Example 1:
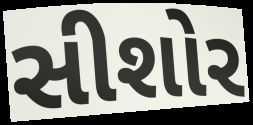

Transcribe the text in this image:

સીશોર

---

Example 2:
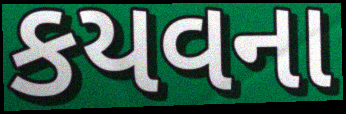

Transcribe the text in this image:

કયવના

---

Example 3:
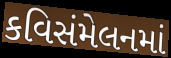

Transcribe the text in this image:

કવિસંમેલનમાં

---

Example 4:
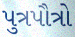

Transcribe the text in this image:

પુત્રપૌત્રો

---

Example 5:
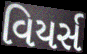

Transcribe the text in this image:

વિયર્સ